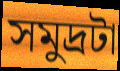
সমুদ্রটা